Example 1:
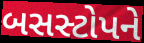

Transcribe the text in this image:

બસસ્ટોપને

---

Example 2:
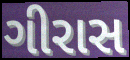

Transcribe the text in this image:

ગીરાસ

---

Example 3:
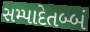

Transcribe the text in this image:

સમ્પાદેતબ્બં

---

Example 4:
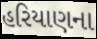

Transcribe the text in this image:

હરિયાણના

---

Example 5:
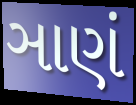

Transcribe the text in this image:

ઞાણં